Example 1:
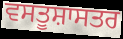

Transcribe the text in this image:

ਵਸਤੂਸ਼ਾਸਤਰ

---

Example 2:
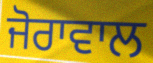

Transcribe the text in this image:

ਜੋਰਾਵਾਲ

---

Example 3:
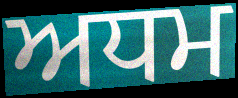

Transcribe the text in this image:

ਅਧਮ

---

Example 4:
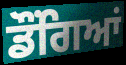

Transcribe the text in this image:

ਡੌਂਗਿਆਂ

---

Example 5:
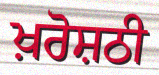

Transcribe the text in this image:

ਖ਼ਰੋਸ਼ਠੀ